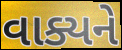
વાક્યને